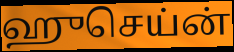
ஹுசெய்ன்